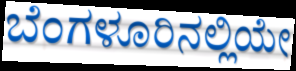
ಬೆಂಗಳೂರಿನಲ್ಲಿಯೇ